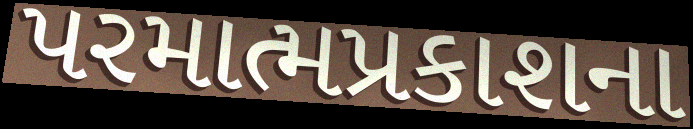
પરમાત્મપ્રકાશના